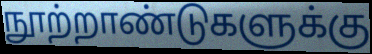
நூற்றாண்டுகளுக்கு